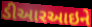
ડીઆરઆઇને